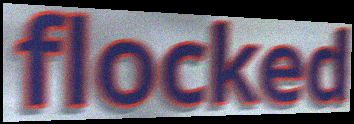
flocked